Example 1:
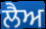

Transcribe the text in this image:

ਲੈਅ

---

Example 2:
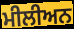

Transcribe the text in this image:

ਮੀਲੀਅਨ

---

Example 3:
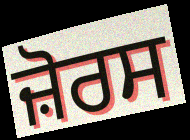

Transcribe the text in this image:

ਜ਼ੋਰਸ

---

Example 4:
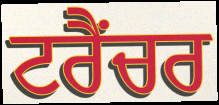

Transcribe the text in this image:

ਟਰੈਂਚਰ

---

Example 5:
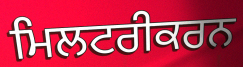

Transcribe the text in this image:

ਮਿਲਟਰੀਕਰਨ